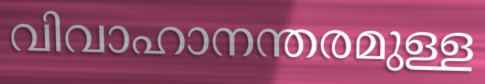
വിവാഹാനന്തരമുള്ള